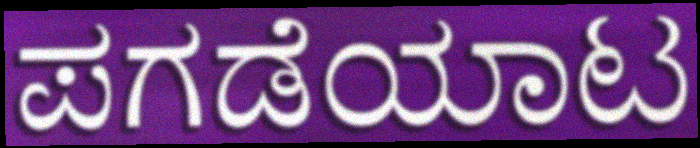
ಪಗಡೆಯಾಟ